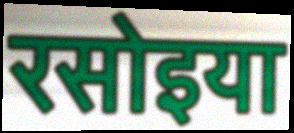
रसोइया